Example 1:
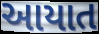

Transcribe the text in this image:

આયાત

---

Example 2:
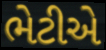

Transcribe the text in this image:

ભેટીએ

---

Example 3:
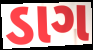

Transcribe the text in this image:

ડાગ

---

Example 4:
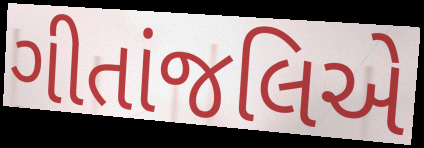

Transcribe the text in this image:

ગીતાંજલિએ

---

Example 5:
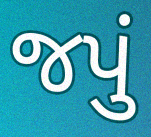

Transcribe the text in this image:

જપું